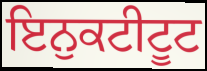
ਇਨੁਕਟੀਟੂਟ